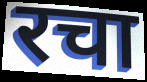
रचा